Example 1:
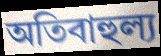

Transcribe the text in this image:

অতিবাহুল্য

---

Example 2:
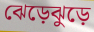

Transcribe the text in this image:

ঝেড়েঝুড়ে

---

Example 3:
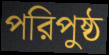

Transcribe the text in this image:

পরিপুষ্ঠ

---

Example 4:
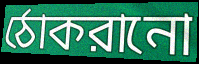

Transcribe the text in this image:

ঠোকরানো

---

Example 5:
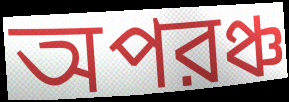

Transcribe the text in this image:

অপরঞ্চ